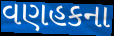
વણહકના